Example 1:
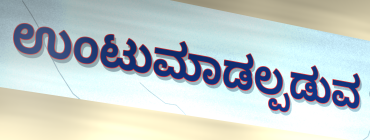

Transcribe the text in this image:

ಉಂಟುಮಾಡಲ್ಪಡುವ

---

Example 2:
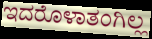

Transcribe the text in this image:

ಇದರೊಳಾತಂಗಿಲ್ಲ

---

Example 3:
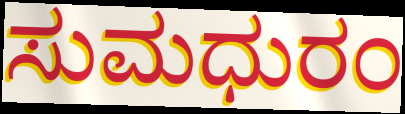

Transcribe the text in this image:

ಸುಮಧುರಂ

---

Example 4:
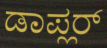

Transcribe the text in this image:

ಡಾಪ್ಲರ್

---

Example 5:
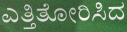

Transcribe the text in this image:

ಎತ್ತಿತೋರಿಸಿದ